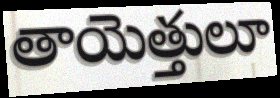
తాయెత్తులూ